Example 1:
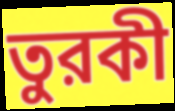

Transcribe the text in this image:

তুরকী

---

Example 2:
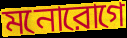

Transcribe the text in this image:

মনোরোগে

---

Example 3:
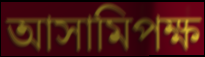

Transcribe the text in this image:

আসামিপক্ষ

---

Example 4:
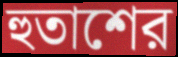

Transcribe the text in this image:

হুতাশের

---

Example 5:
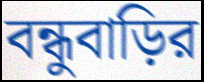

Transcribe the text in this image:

বন্ধুবাড়ির